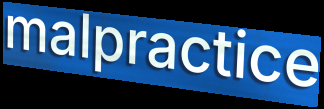
malpractice